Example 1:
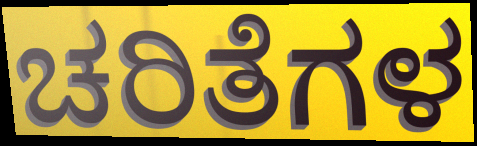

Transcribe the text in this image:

ಚರಿತೆಗಳ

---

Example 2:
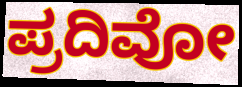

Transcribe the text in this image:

ಪ್ರದಿವೋ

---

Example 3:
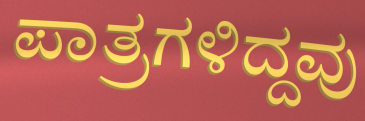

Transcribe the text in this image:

ಪಾತ್ರಗಳಿದ್ದವು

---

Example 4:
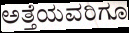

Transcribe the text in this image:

ಅತ್ತೆಯವರಿಗೂ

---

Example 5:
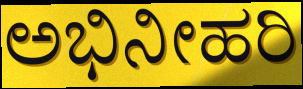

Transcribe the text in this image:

ಅಭಿನೀಹರಿ